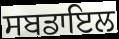
ਸਬਡਾਇਲ